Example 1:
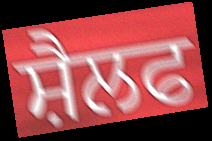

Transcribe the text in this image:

ਸ਼ੈਲਫ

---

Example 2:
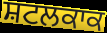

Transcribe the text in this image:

ਸ਼ਟਲਕਾਕ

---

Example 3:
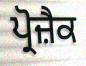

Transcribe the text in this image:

ਪ੍ਰੋਜ਼ੈਕ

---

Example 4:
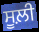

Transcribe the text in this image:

ਸੂਲ਼ੀ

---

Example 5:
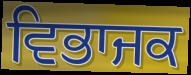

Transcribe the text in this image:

ਵਿਭਾਜਕ